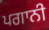
ਪਗਾਨੀ